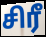
சிரீ